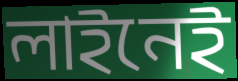
লাইনেই